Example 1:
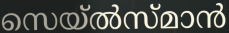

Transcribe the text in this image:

സെയ്ൽസ്മാൻ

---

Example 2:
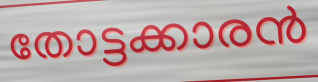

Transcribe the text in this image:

തോട്ടക്കാരൻ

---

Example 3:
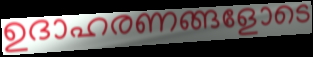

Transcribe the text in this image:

ഉദാഹരണങ്ങളോടെ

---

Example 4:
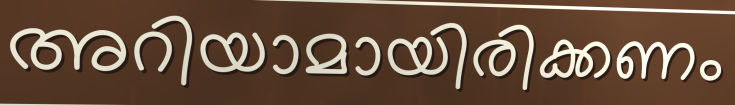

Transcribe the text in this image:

അറിയാമായിരിക്കണം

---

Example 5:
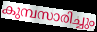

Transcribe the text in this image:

കുമ്പസാരിച്ചും